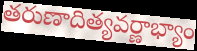
తరుణాదిత్యవర్ణాభ్యాం